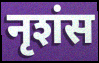
नृशंस